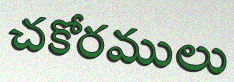
చకోరములు